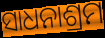
ସାଧନାଶ୍ରମ